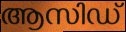
ആസിഡ്